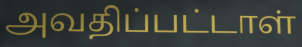
அவதிப்பட்டாள்